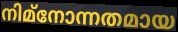
നിമ്നോന്നതമായ